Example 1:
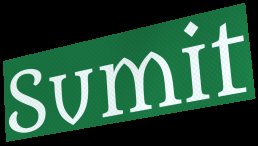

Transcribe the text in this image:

Sumit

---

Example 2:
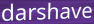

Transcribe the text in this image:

darshave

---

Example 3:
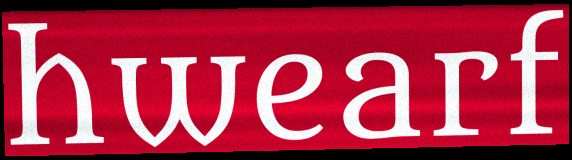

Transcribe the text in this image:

hwearf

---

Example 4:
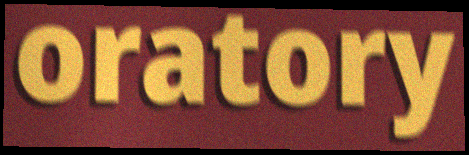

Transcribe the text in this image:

oratory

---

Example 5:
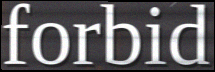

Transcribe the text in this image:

forbid